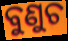
ବୁଣୁଚ